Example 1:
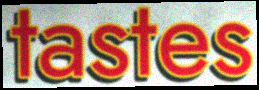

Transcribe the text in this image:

tastes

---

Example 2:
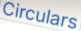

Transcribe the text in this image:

Circulars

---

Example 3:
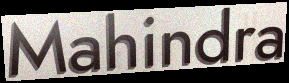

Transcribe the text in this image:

Mahindra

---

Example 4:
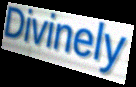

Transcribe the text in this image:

Divinely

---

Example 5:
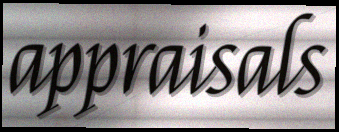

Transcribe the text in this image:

appraisals